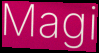
Magi